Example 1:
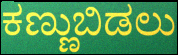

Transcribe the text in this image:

ಕಣ್ಣುಬಿಡಲು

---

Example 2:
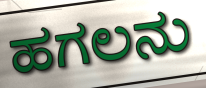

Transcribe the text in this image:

ಹಗಲನು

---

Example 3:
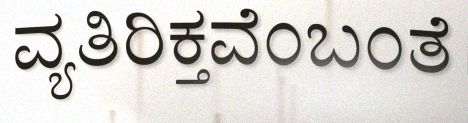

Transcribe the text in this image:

ವ್ಯತಿರಿಕ್ತವೆಂಬಂತೆ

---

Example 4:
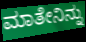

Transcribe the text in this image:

ಮಾತೇನಿನ್ನು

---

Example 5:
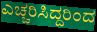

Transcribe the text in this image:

ಎಚ್ಚರಿಸಿದ್ದರಿಂದ